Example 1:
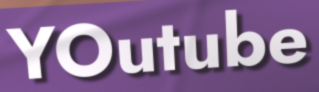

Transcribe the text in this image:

YOutube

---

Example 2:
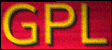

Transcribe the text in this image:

GPL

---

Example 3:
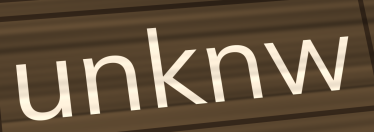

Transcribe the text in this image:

unknw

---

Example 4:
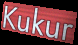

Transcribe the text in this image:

Kukur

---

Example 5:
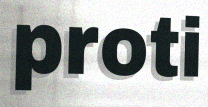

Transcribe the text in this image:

proti